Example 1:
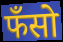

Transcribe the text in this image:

फँसो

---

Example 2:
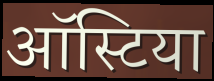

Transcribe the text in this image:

ऑस्टिया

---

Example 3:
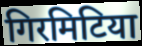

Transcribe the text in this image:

गिरमिटिया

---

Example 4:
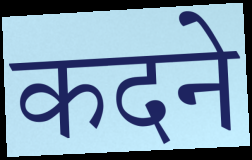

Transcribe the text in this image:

कदने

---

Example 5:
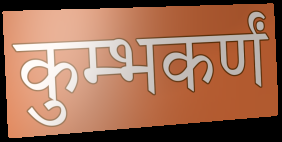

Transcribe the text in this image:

कुम्भकर्णं